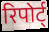
रिपोर्ट्